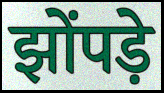
झोंपड़े